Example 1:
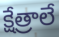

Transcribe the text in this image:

క్షేత్రాలే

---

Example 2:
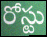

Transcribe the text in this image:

రోస్టు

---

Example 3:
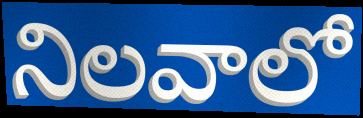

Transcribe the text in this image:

నిలవాలో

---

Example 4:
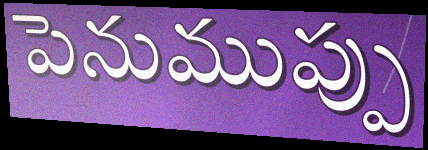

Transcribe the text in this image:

పెనుముప్పు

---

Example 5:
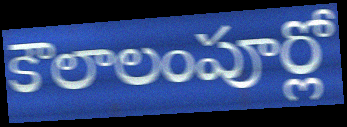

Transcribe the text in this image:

కౌలాలంపూర్లో